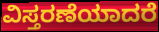
ವಿಸ್ತರಣೆಯಾದರೆ